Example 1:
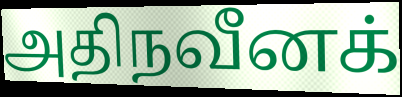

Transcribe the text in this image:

அதிநவீனக்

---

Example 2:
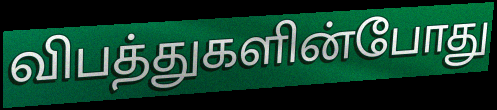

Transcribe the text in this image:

விபத்துகளின்போது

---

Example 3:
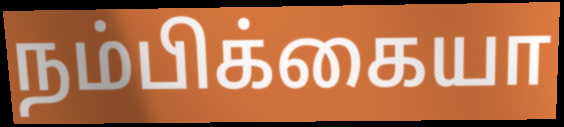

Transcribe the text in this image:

நம்பிக்கையா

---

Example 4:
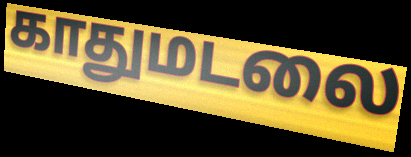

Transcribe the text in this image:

காதுமடலை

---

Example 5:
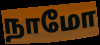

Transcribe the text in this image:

நாமோ